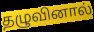
தழுவினால்